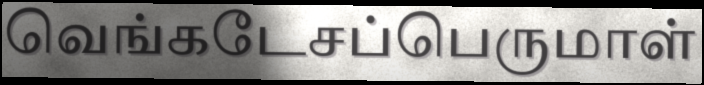
வெங்கடேசப்பெருமாள்